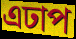
এঢাপ